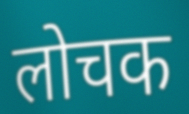
लोचक